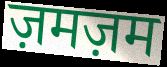
ज़मज़म